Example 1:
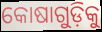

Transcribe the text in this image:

କୋଷାଗୁଡ଼ିକୁ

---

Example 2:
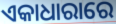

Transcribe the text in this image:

ଏକାଧାରାରେ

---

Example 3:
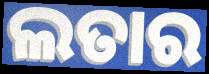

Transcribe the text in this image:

ଲତାର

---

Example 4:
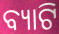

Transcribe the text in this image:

ବ୍ୟାଟି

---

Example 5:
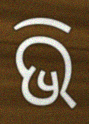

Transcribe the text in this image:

ଭି